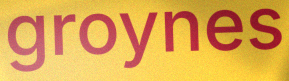
groynes